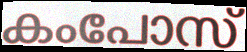
കംപോസ്